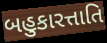
બહુકારત્તાતિ